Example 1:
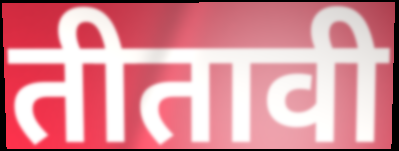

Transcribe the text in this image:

तीतावी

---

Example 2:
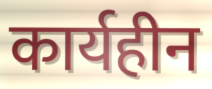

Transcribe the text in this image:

कार्यहीन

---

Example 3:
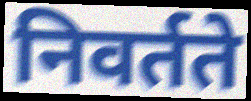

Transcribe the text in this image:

निवर्तते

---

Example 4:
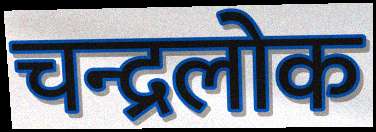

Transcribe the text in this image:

चन्द्रलोक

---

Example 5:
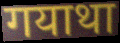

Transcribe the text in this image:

गयाथा